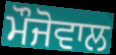
ਮੌਜੋਵਾਲ